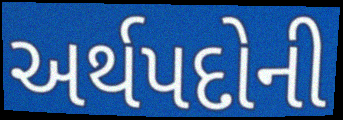
અર્થપદોની